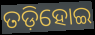
ତଡ଼ିହୋଇ